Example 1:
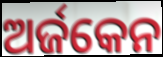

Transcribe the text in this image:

ଅର୍ଜକେନ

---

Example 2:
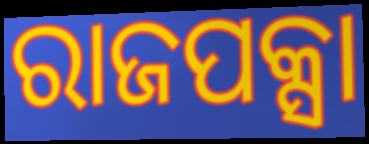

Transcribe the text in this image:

ରାଜପକ୍ସା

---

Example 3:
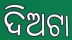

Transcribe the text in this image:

ଦିଅଟା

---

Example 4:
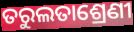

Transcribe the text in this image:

ତରୁଲତାଶ୍ରେଣୀ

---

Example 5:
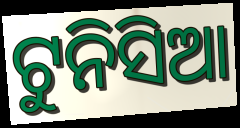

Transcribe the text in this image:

ଟୁନିସିଆ